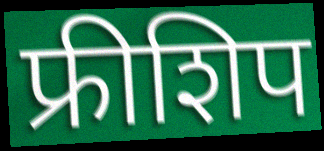
फ्रीशिप